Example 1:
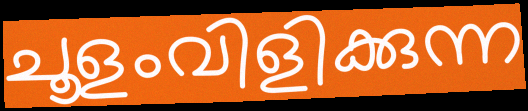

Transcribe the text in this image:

ചൂളംവിളിക്കുന്ന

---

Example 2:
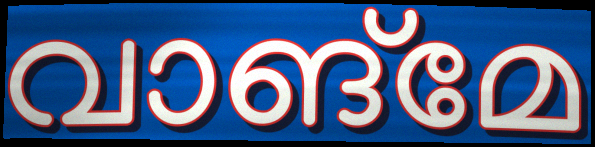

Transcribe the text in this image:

വാങ്മേ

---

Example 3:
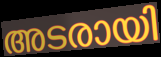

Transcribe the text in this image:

അടരായി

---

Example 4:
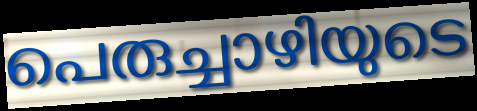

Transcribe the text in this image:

പെരുച്ചാഴിയുടെ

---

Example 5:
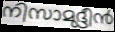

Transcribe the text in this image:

നിസാമുദ്ദീൻ